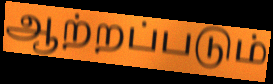
ஆற்றப்படும்